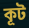
কূট